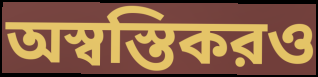
অস্বস্তিকরও